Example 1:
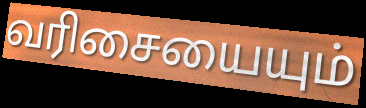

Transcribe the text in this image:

வரிசையையும்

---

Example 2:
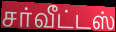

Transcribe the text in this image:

சர்வீட்டஸ்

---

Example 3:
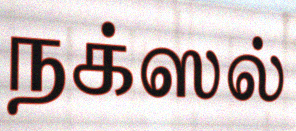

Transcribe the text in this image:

நக்ஸல்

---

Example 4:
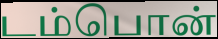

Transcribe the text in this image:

டம்பொன்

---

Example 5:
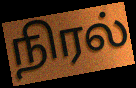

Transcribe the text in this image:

நிரல்